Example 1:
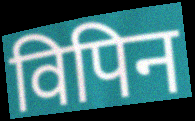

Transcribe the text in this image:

विपिन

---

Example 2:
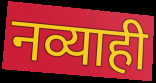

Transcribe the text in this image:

नव्याही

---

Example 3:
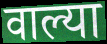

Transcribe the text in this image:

वाल्या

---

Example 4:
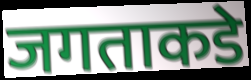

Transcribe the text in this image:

जगताकडे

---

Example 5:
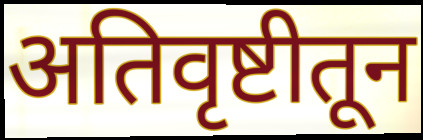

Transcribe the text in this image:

अतिवृष्टीतून